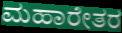
ಮಹಾರೇತರ